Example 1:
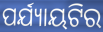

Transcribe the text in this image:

ପର୍ଯ୍ୟାୟଟିର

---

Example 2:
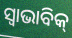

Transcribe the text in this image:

ସ୍ଵାଭାବିକ୍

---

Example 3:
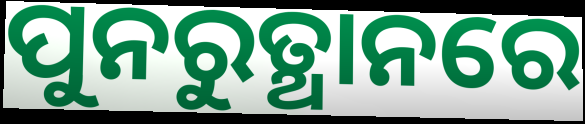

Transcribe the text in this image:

ପୁନରୁତ୍ଥାନରେ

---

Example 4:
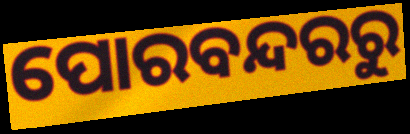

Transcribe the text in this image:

ପୋରବନ୍ଦରରୁ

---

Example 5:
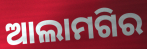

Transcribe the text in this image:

ଆଲାମଗିର